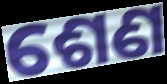
ଶେଣ